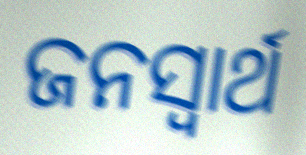
ଜନସ୍ଵାର୍ଥ